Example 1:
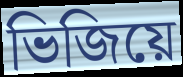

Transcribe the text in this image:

ভিজিয়ে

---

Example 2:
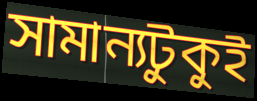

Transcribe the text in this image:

সামান্যটুকুই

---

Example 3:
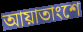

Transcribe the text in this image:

আয়াতাংশে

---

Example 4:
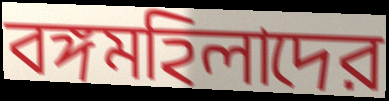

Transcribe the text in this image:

বঙ্গমহিলাদের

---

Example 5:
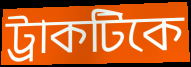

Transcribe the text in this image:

ট্রাকটিকে